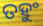
ତହୁଂ